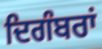
ਦਿਗੰਬਰਾਂ